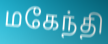
மகேந்தி